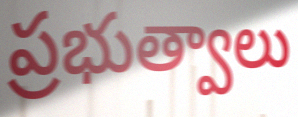
ప్రభుత్వాలు